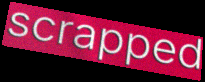
scrapped